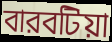
বারবটিয়া